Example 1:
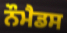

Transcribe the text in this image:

ਨੌਮੈਡਸ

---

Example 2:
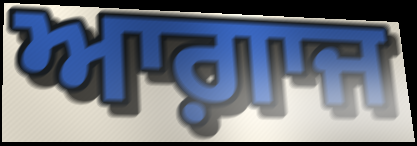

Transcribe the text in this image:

ਆਗ਼ਾਜ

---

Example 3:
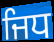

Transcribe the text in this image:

ਜਿਧ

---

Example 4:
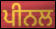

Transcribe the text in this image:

ਪੀਨਲ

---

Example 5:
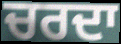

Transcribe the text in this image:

ਚਰਦਾ